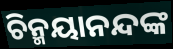
ଚିନ୍ମୟାନନ୍ଦଙ୍କ